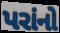
પરાંનો